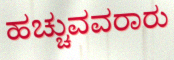
ಹಚ್ಚುವವರಾರು